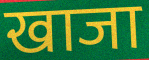
खाजा